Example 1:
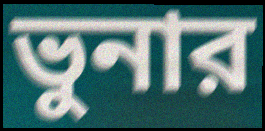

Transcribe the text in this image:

ভুনার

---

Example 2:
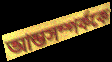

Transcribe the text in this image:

আন্তসম্পর্ককে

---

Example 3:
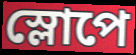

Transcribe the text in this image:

স্লোপে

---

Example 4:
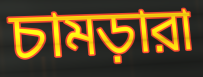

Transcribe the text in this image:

চামড়ারা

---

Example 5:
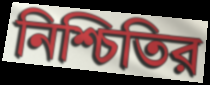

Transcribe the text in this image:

নিশ্চিতির